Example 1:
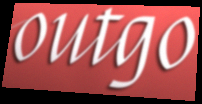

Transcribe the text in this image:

outgo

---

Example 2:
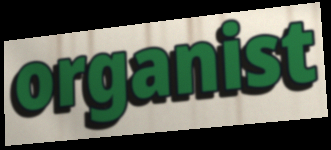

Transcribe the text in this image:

organist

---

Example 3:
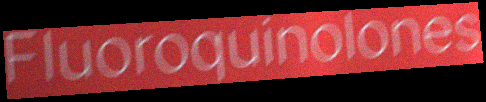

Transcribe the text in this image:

Fluoroquinolones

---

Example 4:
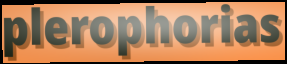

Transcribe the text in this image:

plerophorias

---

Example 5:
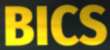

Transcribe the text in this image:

BICS